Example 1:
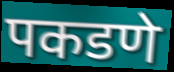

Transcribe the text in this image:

पकडणे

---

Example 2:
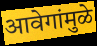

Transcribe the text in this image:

आवेगांमुळे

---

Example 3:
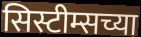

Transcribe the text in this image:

सिस्टीम्सच्या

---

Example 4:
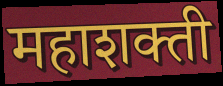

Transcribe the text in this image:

महाशक्ती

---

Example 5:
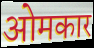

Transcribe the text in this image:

ओमकार